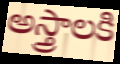
అస్త్రాలకి